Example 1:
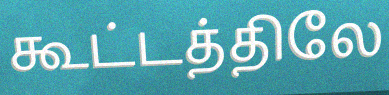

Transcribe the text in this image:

கூட்டத்திலே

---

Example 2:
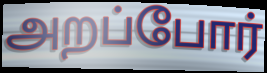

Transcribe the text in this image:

அறப்போர்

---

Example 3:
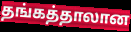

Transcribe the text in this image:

தங்கத்தாலான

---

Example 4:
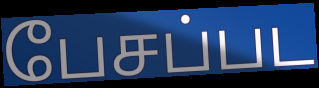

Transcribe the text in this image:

பேசப்பட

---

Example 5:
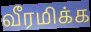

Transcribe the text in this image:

வீரமிக்க